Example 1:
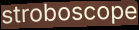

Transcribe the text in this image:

stroboscope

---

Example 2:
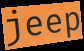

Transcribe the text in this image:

jeep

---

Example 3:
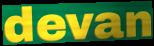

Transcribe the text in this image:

devan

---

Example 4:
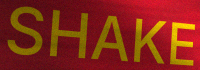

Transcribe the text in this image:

SHAKE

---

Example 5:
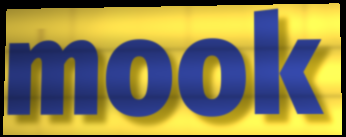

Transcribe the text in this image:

mook